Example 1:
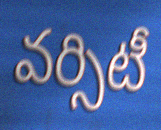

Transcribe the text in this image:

వర్సిటీ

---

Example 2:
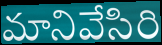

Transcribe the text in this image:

మానివేసిరి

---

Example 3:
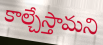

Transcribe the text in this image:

కాల్చేస్తామని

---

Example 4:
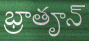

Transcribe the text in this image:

భ్రాతౄన్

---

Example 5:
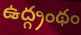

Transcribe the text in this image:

ఉద్గ్రంథం